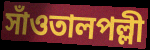
সাঁওতালপল্লী